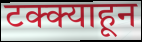
टक्क्याहून